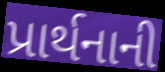
પ્રાર્થનાની